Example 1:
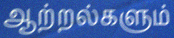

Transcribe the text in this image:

ஆற்றல்களும்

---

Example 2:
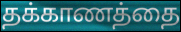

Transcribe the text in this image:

தக்காணத்தை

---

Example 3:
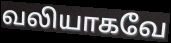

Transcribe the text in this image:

வலியாகவே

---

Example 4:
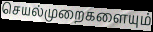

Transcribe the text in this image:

செயல்முறைகளையும்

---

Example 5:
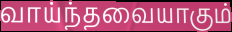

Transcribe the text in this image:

வாய்ந்தவையாகும்